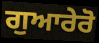
ਗੁਆਰੇਰੋ